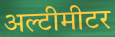
अल्टीमीटर